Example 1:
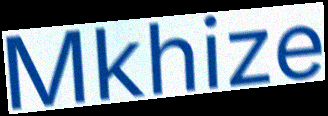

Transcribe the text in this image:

Mkhize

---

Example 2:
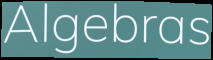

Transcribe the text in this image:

Algebras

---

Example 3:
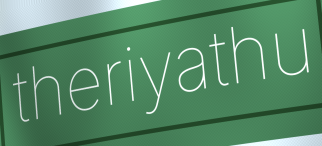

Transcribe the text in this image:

theriyathu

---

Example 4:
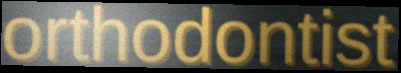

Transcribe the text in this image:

orthodontist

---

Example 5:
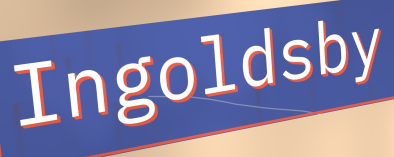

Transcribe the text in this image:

Ingoldsby